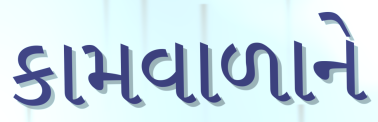
કામવાળાને